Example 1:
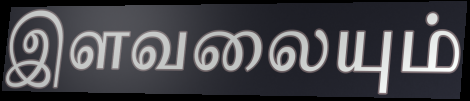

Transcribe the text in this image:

இளவலையும்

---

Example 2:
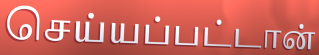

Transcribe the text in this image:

செய்யப்பட்டான்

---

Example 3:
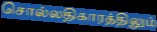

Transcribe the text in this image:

சொல்லதிகாரத்திலும்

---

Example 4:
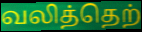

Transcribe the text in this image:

வலித்தெற்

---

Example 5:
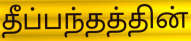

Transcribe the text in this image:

தீப்பந்தத்தின்